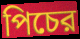
পিচের